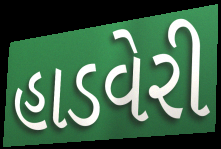
હાડવેરી